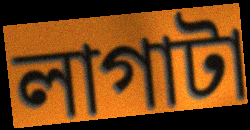
লাগাটা